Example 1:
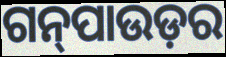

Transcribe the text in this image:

ଗନ୍‍ପାଉଡ଼ର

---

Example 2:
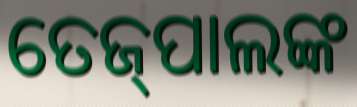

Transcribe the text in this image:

ତେଜ୍‌ପାଲଙ୍କ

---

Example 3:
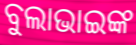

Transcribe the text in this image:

ବୁଲାଭାଇଙ୍କ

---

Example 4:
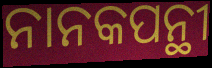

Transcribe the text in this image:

ନାନକପନ୍ଥୀ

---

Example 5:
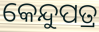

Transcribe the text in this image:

କେନ୍ଦୁପତ୍ର